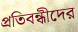
প্রতিবন্ধীদের